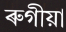
ৰুগীয়া